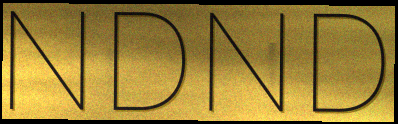
NDND